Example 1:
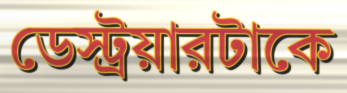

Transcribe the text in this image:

ডেস্ট্রয়ারটাকে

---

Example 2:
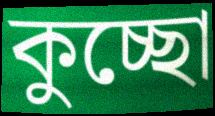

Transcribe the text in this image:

কুচ্ছো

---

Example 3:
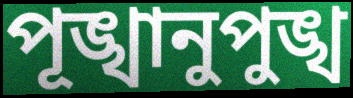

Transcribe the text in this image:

পূঙ্খানুপুঙ্খ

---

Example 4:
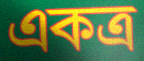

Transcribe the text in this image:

একত্র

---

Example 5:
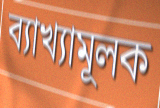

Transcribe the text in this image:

ব্যাখ্যামূলক